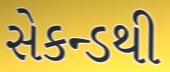
સેકન્ડથી